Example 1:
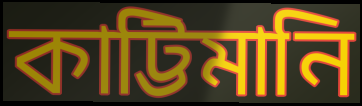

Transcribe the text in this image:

কাট্টিমানি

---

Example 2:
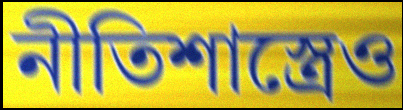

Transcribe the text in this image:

নীতিশাস্ত্রেও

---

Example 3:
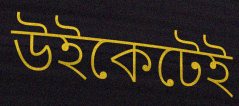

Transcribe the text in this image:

উইকেটেই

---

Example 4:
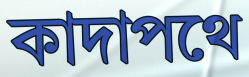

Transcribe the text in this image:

কাদাপথে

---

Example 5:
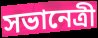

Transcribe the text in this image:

সভানেত্রী